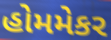
હોમમેકર